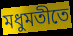
মধুমতীতে